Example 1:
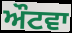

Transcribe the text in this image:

ਔਟਵਾ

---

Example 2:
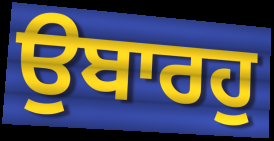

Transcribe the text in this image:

ਉਬਾਰਹੁ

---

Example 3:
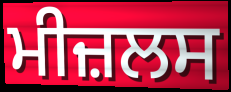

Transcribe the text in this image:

ਮੀਜ਼ਲਸ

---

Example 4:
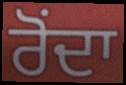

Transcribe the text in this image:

ਰੋਂਦਾ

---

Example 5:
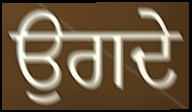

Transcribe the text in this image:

ਉਗਦੇ